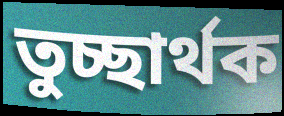
তুচ্ছার্থক